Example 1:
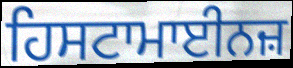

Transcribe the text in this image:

ਹਿਸਟਾਮਾਈਨਜ਼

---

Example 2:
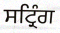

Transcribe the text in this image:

ਸਟ੍ਰਿੰਗ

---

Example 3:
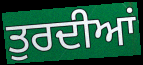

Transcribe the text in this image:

ਤੁਰਦੀਆਂ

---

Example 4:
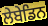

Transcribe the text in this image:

ਲੇਬੇਡਿਨ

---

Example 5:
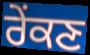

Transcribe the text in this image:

ਰੇੰਕਣ